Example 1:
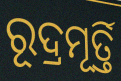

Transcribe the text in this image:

ରୂଦ୍ରମୂର୍ତ୍ତି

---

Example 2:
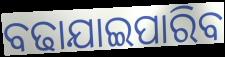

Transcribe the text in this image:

ବଢାଯାଇପାରିବ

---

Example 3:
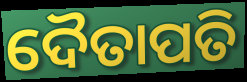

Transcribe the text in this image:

ଦୈତାପତି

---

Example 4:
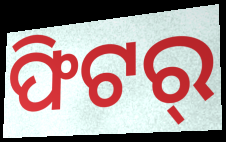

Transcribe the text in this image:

ଫିଟର୍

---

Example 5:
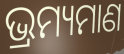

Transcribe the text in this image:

ଭ୍ରମ୍ୟମାଣ